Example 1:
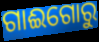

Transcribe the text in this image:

ଗାଈଗୋରୁ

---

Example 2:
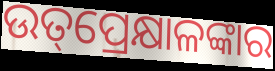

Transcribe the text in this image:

ଉତ୍‌ପ୍ରେକ୍ଷାଳଙ୍କାର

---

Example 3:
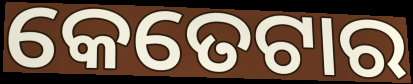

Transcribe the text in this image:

କେତେଟାର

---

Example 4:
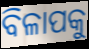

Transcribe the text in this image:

ବିଳାପକୁ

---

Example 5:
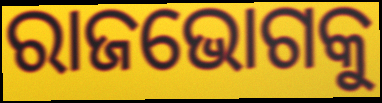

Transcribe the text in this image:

ରାଜଭୋଗକୁ